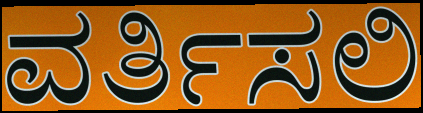
ವರ್ತಿಸಲಿ